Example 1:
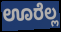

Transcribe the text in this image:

ಊರೆಲ್ಲ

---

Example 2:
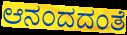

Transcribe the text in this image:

ಆನಂದದಂತೆ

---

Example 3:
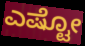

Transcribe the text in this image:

ಎಷ್ಟೋ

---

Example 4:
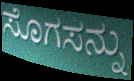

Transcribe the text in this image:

ಸೊಗಸನ್ನು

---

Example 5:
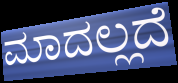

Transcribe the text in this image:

ಮಾದಲ್ಲದೆ